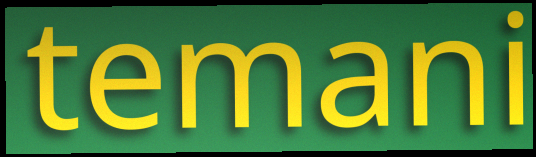
temani